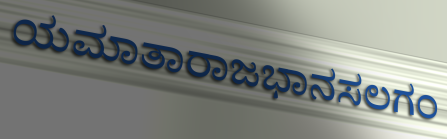
ಯಮಾತಾರಾಜಭಾನಸಲಗಂ